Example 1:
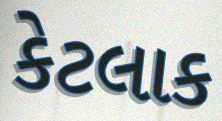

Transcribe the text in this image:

કેટલાક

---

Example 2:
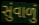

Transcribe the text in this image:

સુંવાળું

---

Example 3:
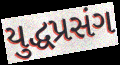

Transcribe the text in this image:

યુદ્ધપ્રસંગ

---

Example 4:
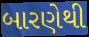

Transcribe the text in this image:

બારણેથી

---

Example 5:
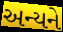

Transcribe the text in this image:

અન્યને